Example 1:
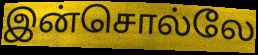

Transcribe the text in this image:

இன்சொல்லே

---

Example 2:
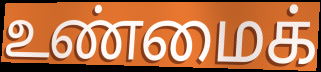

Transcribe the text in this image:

உண்மைக்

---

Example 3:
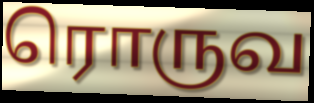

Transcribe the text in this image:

ரொருவ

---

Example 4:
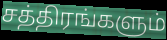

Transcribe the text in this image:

சத்திரங்களும்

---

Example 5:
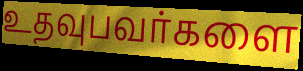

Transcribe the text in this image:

உதவுபவர்களை